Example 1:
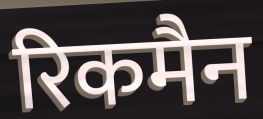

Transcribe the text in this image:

रिकमैन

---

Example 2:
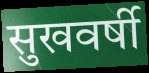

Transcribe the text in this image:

सुखवर्षी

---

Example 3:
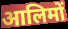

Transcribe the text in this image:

आलिमों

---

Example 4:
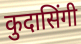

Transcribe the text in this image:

कुदासिंगी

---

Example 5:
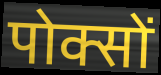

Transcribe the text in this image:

पोक्सों